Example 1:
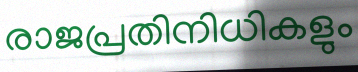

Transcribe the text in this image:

രാജപ്രതിനിധികളും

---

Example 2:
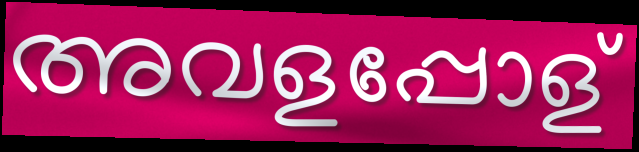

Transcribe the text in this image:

അവളപ്പോള്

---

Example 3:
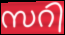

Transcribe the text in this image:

സറി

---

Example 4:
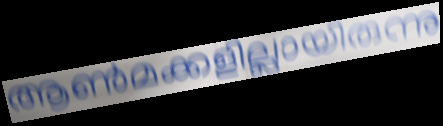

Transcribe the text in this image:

ആൺമക്കളില്ലായിരുന്നു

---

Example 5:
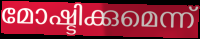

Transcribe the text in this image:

മോഷ്ടിക്കുമെന്ന്